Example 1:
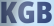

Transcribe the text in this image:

KGB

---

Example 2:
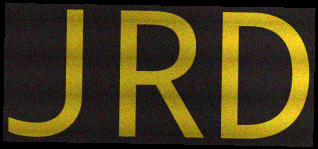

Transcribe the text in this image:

JRD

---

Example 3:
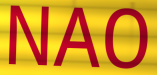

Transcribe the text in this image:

NAO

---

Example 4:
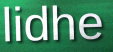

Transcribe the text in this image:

lidhe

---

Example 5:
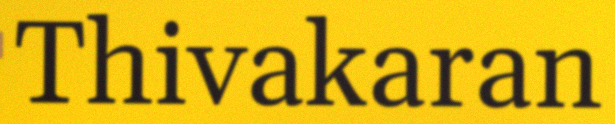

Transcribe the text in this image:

Thivakaran